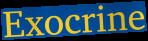
Exocrine